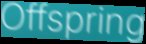
Offspring